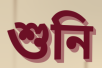
শুনি